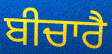
ਬੀਚਾਰੈ